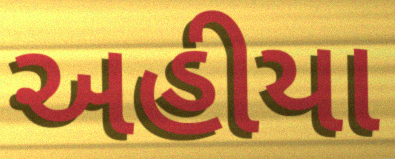
અહીયા